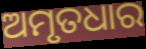
ଅମୃତଧାର